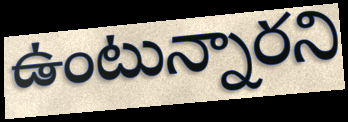
ఉంటున్నారని